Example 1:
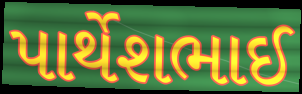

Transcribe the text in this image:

પાર્થેશભાઈ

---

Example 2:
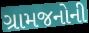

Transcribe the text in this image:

ગ્રામજનોની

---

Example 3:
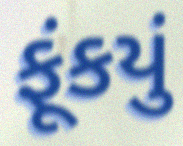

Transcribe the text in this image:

ફૂંકયું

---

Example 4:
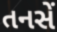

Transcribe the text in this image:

તનસેં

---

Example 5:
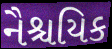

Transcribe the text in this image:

નૈશ્ચયિક